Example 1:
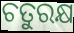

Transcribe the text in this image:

ଚତୁରକ୍ଷ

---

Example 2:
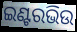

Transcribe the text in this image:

ଇଣ୍ଟରଭିଉ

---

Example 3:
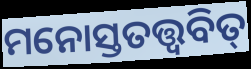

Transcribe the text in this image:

ମନୋସ୍ତତତ୍ତ୍ୱବିତ୍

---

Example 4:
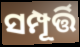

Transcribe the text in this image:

ସମ୍ପୂର୍ତ୍ତି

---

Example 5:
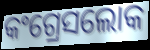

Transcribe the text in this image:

କଂଗ୍ରେସଲୋକ